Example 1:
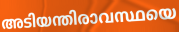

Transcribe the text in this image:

അടിയന്തിരാവസ്ഥയെ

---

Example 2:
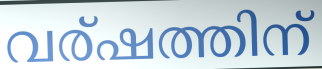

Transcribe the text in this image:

വര്ഷത്തിന്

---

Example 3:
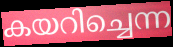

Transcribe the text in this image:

കയറിച്ചെന്ന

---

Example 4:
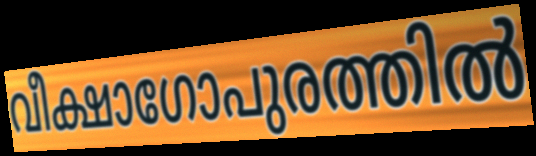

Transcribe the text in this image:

വീക്ഷാഗോപുരത്തിൽ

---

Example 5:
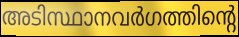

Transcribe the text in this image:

അടിസ്ഥാനവർഗത്തിന്റെ